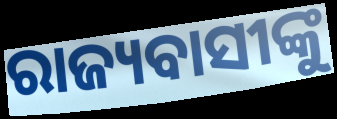
ରାଜ୍ୟବାସୀଙ୍କୁ